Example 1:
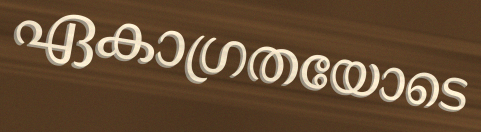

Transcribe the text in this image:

ഏകാഗ്രതയോടെ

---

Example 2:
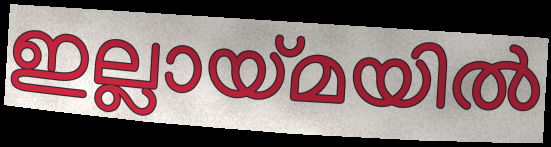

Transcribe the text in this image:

ഇല്ലായ്മയിൽ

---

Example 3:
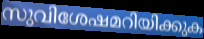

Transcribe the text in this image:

സുവിശേഷമറിയിക്കുക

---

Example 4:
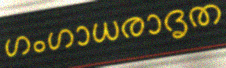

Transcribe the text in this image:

ഗംഗാധരാദൃത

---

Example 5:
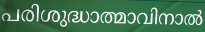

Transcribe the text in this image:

പരിശുദ്ധാത്മാവിനാൽ